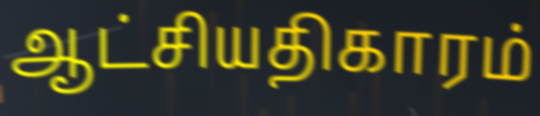
ஆட்சியதிகாரம்